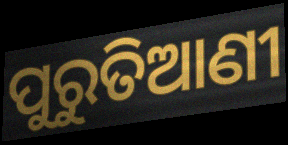
ପୁରୁତିଆଣୀ